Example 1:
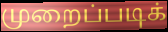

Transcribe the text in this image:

முறைப்படிக்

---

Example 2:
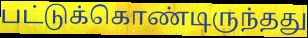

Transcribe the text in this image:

பட்டுக்கொண்டிருந்தது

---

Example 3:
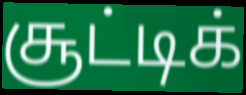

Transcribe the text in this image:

சூட்டிக்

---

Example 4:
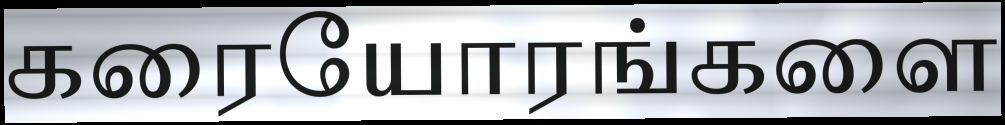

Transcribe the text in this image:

கரையோரங்களை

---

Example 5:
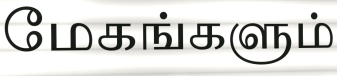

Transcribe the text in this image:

மேகங்களும்